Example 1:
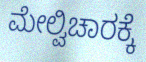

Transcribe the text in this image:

ಮೇಲ್ವಿಚಾರಕ್ಕೆ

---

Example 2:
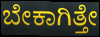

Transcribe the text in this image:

ಬೇಕಾಗಿತ್ತೇ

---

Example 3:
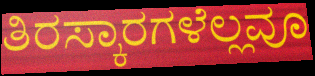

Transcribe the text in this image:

ತಿರಸ್ಕಾರಗಳೆಲ್ಲವೂ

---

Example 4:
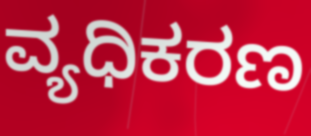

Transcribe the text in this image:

ವ್ಯಧಿಕರಣ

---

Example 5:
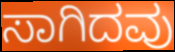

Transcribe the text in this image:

ಸಾಗಿದವು